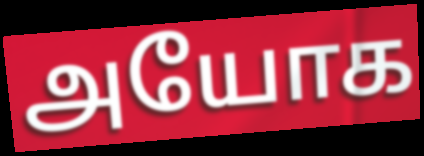
அயோக